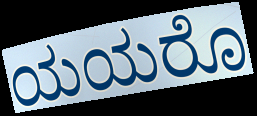
ಯಯರೊ